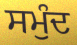
ਸਮੁੰਦ